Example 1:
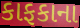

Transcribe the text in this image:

કાફકાના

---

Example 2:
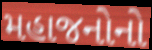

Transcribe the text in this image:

મહાજનોનો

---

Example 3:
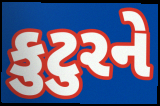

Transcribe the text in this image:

કુટુરને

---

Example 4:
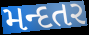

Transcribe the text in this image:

મન્દતર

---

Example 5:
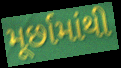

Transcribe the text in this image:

મૂર્છામાંથી